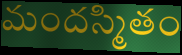
మందస్మితం